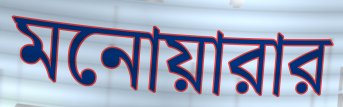
মনোয়ারার